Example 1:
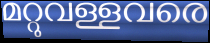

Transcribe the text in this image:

മറ്റുവള്ളവരെ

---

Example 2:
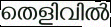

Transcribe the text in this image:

തെളിവിൽ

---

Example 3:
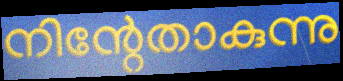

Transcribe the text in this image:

നിന്റേതാകുന്നു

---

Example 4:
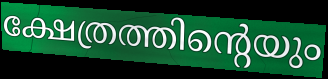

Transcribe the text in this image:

ക്ഷേത്രത്തിന്റെയും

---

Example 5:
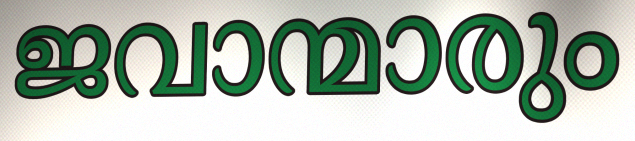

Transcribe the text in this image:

ജവാന്മാരും